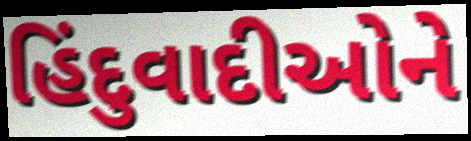
હિંદુવાદીઓને